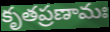
కృతప్రణామః